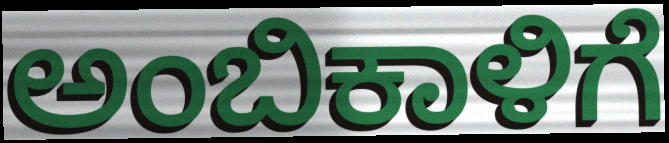
ಅಂಬಿಕಾಳಿಗೆ